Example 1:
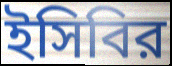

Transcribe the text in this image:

ইসিবির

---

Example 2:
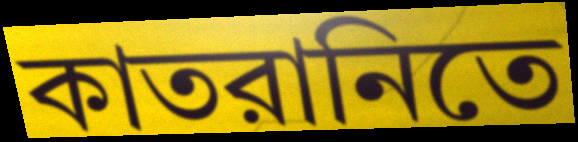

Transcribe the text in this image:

কাতরানিতে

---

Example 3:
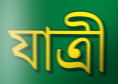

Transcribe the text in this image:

যাত্রী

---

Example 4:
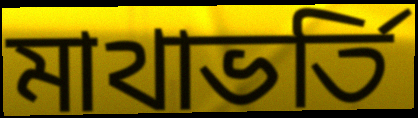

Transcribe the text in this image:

মাথাভর্তি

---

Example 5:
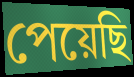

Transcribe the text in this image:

পেয়েছি